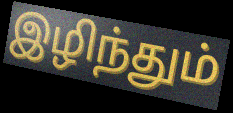
இழிந்தும்